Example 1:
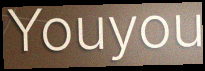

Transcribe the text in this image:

Youyou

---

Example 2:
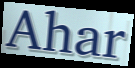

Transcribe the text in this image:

Ahar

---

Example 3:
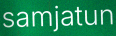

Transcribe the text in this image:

samjatun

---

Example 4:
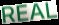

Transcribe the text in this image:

REAL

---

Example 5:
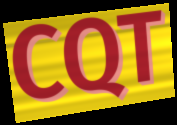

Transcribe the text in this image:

CQT